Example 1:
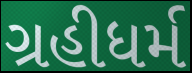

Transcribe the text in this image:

ગ્રહીધર્મ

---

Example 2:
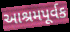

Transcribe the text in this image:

આશ્રમપૂર્વક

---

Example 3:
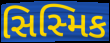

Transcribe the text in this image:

સિસ્મિક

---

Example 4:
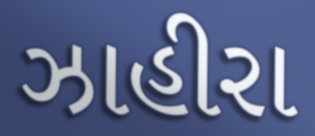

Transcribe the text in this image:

ઝાહીરા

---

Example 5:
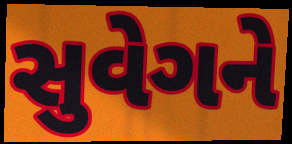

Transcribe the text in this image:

સુવેગને